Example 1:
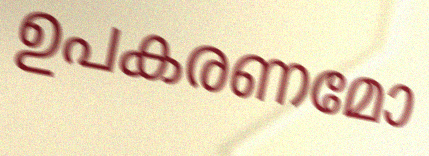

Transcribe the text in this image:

ഉപകരണമോ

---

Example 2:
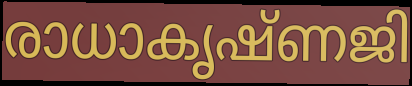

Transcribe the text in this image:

രാധാകൃഷ്ണജി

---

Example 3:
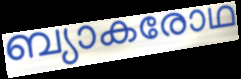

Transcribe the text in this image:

ബ്യാകരോഥ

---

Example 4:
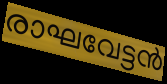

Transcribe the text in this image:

രാഘവേട്ടൻ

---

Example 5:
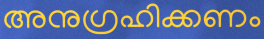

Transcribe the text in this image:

അനുഗ്രഹിക്കണം